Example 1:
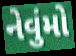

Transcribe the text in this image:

નેવુંમો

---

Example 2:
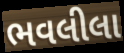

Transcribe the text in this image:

ભવલીલા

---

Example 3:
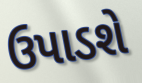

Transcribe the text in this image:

ઉપાડશે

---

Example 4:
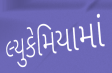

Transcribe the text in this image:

લ્યુકેમિયામાં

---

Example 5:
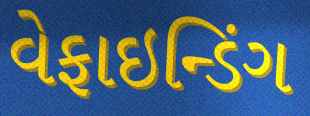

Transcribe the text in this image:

વેફાઇન્ડિંગ